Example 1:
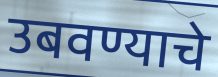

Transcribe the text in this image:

उबवण्याचे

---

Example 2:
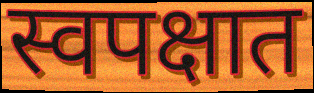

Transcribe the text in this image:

स्वपक्षात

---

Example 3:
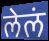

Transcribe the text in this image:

लेलं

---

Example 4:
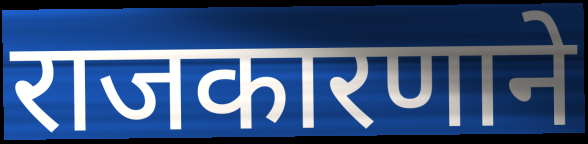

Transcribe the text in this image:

राजकारणाने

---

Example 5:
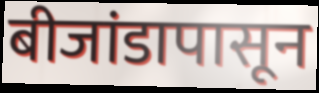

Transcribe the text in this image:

बीजांडापासून